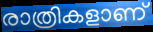
രാത്രികളാണ്